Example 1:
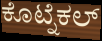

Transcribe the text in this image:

ಕೊಟ್ನೆಕಲ್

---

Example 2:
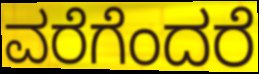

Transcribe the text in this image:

ವರೆಗೆಂದರೆ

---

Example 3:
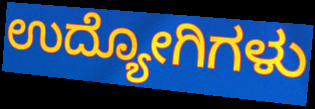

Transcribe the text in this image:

ಉದ್ಯೋಗಿಗಳು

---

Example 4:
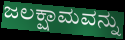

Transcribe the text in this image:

ಜಲಕ್ಷಾಮವನ್ನು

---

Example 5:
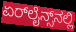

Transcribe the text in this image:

ಏರ್‌ಲೈನ್ಸ್‌ನಲ್ಲಿ